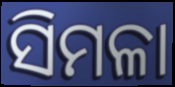
ସିମଳା